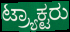
ಟ್ರ್ಯಾಕ್ಟರು